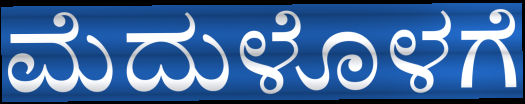
ಮೆದುಳೊಳಗೆ